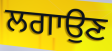
ਲਗਾਉਣ